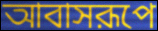
আবাসরূপে